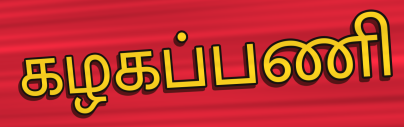
கழகப்பணி